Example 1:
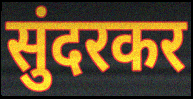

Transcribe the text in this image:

सुंदरकर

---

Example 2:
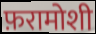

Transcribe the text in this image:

फ़रामोशी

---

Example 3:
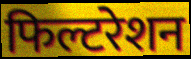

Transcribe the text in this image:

फिल्टरेशन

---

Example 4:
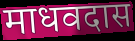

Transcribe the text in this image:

माधवदास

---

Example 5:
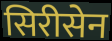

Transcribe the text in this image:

सिरीसेन